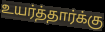
உயர்த்தார்க்கு